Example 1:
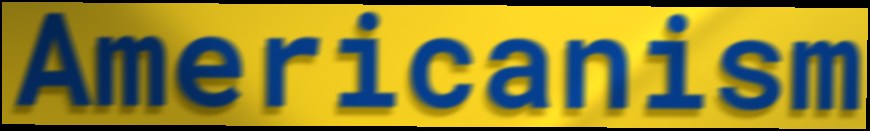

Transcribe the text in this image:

Americanism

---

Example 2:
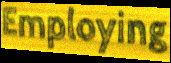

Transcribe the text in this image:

Employing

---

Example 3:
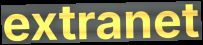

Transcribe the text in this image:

extranet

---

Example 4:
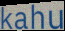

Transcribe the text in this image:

kahu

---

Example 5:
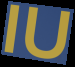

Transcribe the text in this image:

IU